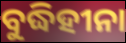
ବୁଦ୍ଧିହୀନା